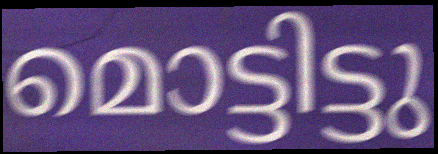
മൊട്ടിട്ടു